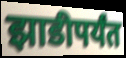
झाडीपर्यंत